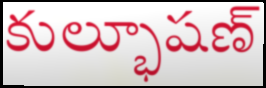
కుల్భూషణ్